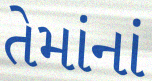
તેમાંનાં